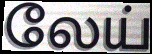
லேய்